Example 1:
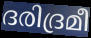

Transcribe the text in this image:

ദരിദ്രമീ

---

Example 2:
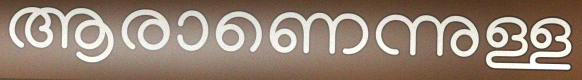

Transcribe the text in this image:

ആരാണെന്നുള്ള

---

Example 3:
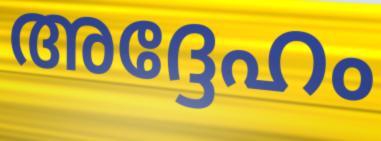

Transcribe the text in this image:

അദ്ദേഹം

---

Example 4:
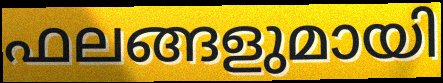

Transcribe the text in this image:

ഫലങ്ങളുമായി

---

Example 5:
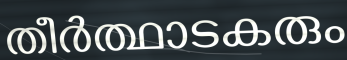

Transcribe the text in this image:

തീർത്ഥാടകരും